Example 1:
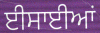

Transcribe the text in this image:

ਈਸਾਈਆਂ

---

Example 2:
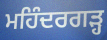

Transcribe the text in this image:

ਮਹਿੰਦਰਗੜ੍ਹ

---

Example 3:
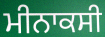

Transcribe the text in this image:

ਮੀਨਾਕਸੀ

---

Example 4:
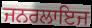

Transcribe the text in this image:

ਜਨਰਲਾਇਜ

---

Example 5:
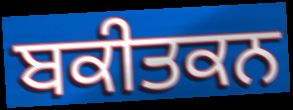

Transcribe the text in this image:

ਬਕੀਤਕਨ